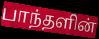
பாந்தளின்